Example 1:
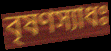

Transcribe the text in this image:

বৃষণস্যাধঃ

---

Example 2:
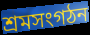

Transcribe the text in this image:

শ্রমসংগঠন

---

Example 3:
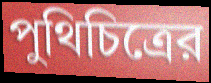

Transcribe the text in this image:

পুথিচিত্রের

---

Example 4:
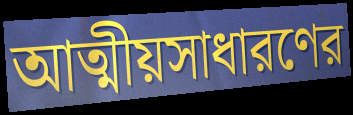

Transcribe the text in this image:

আত্মীয়সাধারণের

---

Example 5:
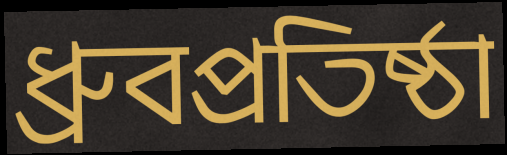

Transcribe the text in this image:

ধ্রুবপ্রতিষ্ঠা